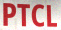
PTCL